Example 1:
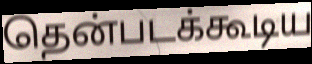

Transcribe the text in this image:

தென்படக்கூடிய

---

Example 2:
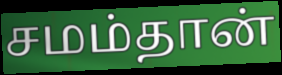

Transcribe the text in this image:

சமம்தான்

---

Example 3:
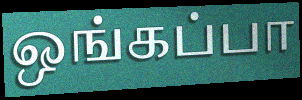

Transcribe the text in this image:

ஒங்கப்பா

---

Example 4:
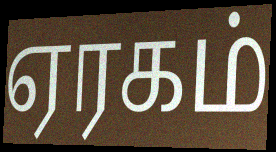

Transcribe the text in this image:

ஏரகம்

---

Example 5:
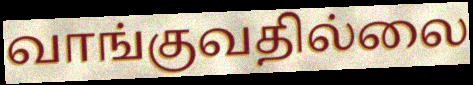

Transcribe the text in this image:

வாங்குவதில்லை